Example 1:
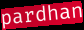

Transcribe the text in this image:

pardhan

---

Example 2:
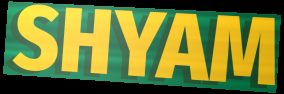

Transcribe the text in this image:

SHYAM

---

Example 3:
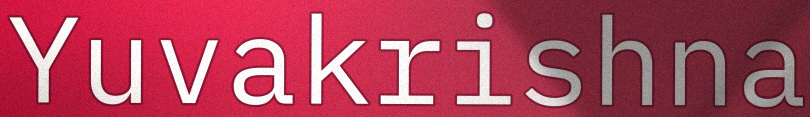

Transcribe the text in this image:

Yuvakrishna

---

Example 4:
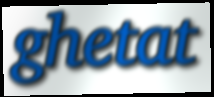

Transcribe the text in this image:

ghetat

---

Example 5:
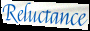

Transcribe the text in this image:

Reluctance